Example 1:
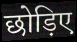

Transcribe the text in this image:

छोड़िए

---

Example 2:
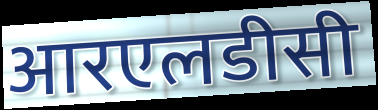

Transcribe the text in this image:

आरएलडीसी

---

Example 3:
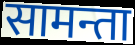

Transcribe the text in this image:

सामन्ता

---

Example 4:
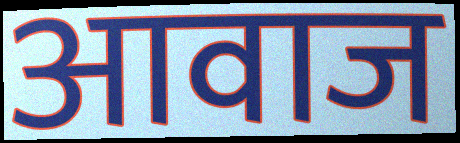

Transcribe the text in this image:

आवाज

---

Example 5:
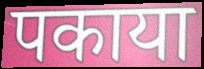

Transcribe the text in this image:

पकाया